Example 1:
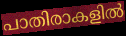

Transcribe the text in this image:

പാതിരാകളിൽ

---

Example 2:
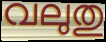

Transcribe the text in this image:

വലുതു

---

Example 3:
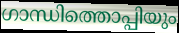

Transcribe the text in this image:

ഗാന്ധിത്തൊപ്പിയും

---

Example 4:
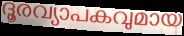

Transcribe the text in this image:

ദൂരവ്യാപകവുമായ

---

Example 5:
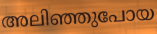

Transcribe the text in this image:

അലിഞ്ഞുപോയ